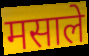
मसाले